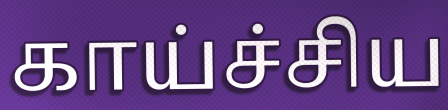
காய்ச்சிய